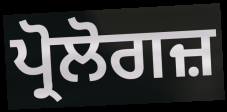
ਪ੍ਰੋਲੋਗਜ਼